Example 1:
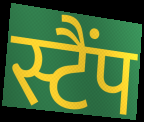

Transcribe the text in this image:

स्टैंप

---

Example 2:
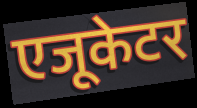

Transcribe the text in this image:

एजूकेटर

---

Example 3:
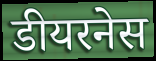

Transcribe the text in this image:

डीयरनेस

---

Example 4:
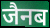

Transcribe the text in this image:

जैनब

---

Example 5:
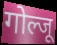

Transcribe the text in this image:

गोल्जू